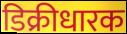
डिक्रीधारक